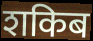
शकिब